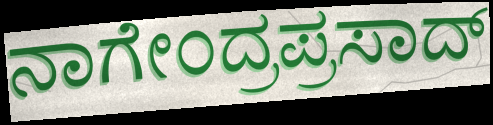
ನಾಗೇಂದ್ರಪ್ರಸಾದ್